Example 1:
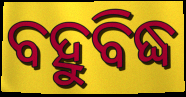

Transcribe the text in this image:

ବହୁବିଦ୍ଧ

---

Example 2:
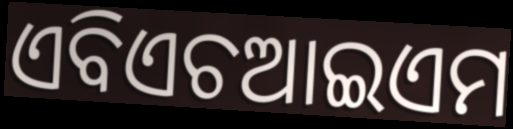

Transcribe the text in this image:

ଏବିଏଚଆଇଏମ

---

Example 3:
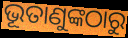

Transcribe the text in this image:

ଭୂତାଣୁଙ୍କଠାରୁ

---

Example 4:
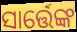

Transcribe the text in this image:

ସାର୍ତ୍ତେଙ୍କ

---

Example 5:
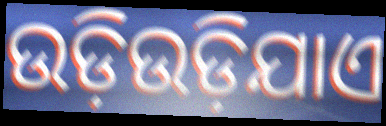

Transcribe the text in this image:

ଉଡ଼ିଉଡ଼ିଯାଏ